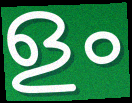
ളം